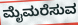
ಮೈಮರೆಸುವ